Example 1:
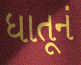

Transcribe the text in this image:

ધાતૂનં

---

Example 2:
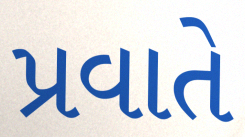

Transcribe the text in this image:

પ્રવાતે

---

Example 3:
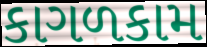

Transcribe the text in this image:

કાગળકામ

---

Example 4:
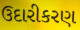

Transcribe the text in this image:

ઉદારીકરણ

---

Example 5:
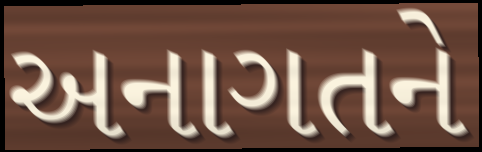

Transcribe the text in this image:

અનાગતને